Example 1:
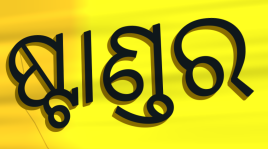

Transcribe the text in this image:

ଷ୍ଟାଣ୍ଡର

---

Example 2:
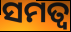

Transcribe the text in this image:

ସମତ୍ଵ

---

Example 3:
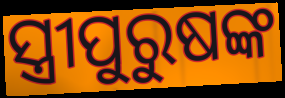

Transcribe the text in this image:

ସ୍ତ୍ରୀପୁରୁଷଙ୍କ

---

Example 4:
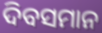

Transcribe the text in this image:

ଦିବସମାନ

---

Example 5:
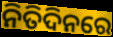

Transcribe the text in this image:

ନିତିଦିନରେ